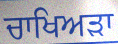
ਚਾਖਿਅੜਾ